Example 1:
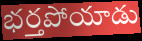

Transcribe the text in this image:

భర్తపోయాడు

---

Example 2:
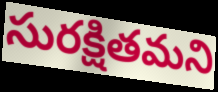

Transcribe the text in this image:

సురక్షితమని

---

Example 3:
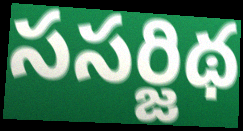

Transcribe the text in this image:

ససర్జిథ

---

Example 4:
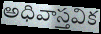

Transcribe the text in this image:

అధివాస్తవిక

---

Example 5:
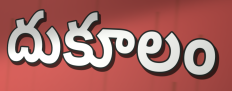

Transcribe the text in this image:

దుకూలం